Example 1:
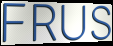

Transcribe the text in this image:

FRUS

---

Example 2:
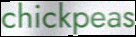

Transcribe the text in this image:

chickpeas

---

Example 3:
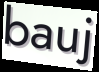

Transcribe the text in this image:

bauj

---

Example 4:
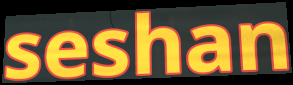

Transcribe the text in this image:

seshan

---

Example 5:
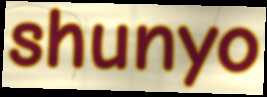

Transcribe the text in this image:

shunyo